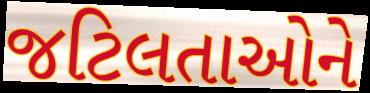
જટિલતાઓને